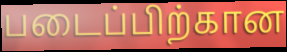
படைப்பிற்கான